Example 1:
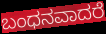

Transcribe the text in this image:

ಬಂಧನವಾದರೆ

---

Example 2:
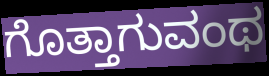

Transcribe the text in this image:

ಗೊತ್ತಾಗುವಂಥ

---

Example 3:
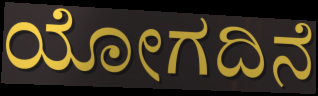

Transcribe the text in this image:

ಯೋಗದಿನೆ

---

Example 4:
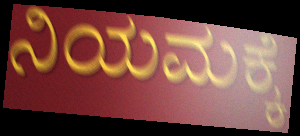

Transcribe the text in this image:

ನಿಯಮಕ್ಕೆ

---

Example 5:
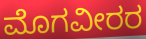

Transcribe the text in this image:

ಮೊಗವೀರರ